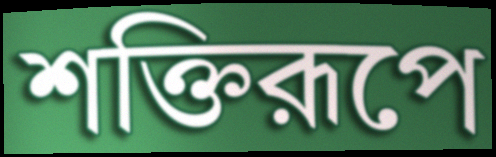
শক্তিরূপে